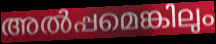
അൽപ്പമെങ്കിലും